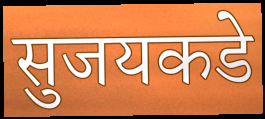
सुजयकडे